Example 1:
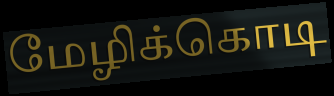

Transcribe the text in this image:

மேழிக்கொடி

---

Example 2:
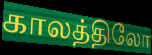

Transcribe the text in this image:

காலத்திலோ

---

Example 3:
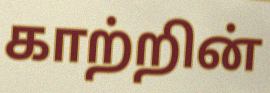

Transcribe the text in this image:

காற்றின்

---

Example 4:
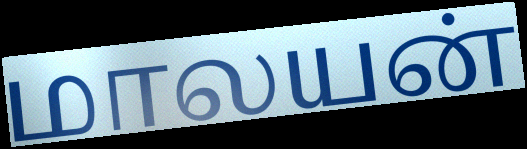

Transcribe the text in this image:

மாலயன்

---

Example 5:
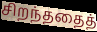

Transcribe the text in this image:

சிறந்ததைத்